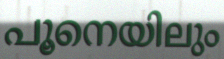
പൂനെയിലും